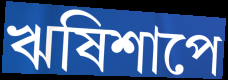
ঋষিশাপে